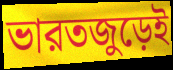
ভারতজুড়েই